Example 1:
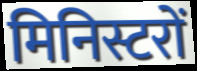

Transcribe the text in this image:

मिनिस्टरों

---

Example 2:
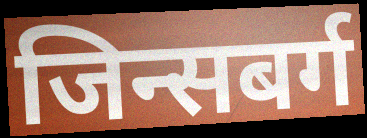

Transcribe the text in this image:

जिन्सबर्ग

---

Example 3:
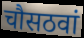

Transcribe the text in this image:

चौसठवां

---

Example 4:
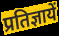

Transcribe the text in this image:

प्रतिज्ञायें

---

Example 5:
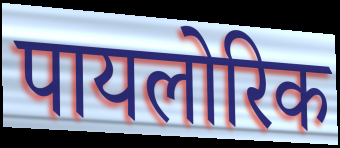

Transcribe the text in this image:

पायलोरिक